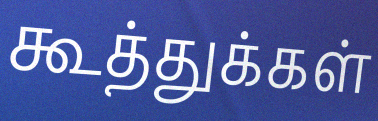
கூத்துக்கள்